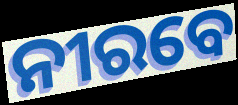
ନୀରବେ